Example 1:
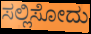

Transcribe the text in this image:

ಸಲ್ಲಿಸೋದು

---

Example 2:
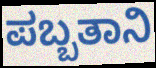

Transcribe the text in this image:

ಪಬ್ಬತಾನಿ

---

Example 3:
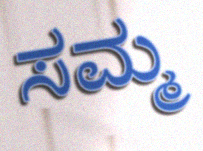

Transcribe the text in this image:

ಸಮ್ಮ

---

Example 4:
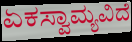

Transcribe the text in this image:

ಏಕಸ್ವಾಮ್ಯವಿದೆ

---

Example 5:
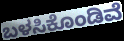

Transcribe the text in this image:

ಬಳಸಿಕೊಂಡಿವೆ